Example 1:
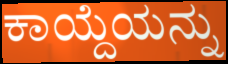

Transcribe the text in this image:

ಕಾಯ್ದೆಯನ್ನು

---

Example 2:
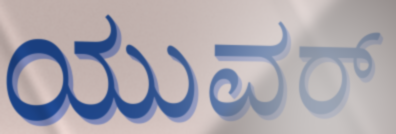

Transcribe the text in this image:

ಯುವರ್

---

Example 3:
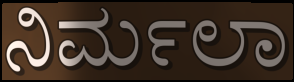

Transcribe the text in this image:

ನಿರ್ಮಲಾ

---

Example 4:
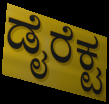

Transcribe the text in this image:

ಡೈರೆಕ್ಟ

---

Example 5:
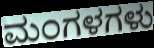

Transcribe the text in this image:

ಮಂಗಳಗಳು